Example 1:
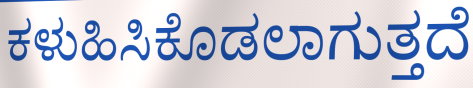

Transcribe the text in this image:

ಕಳುಹಿಸಿಕೊಡಲಾಗುತ್ತದೆ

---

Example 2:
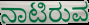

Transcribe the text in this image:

ನಾಟಿರುವ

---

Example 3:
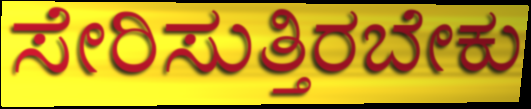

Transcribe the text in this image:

ಸೇರಿಸುತ್ತಿರಬೇಕು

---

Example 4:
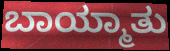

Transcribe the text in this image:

ಬಾಯ್ಮಾತು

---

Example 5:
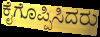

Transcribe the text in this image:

ಕೈಗೊಪ್ಪಿಸಿದರು